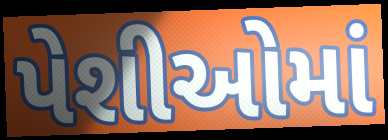
પેશીઓમાં